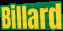
Billard